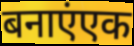
बनाएंएक